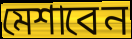
মেশাবেন